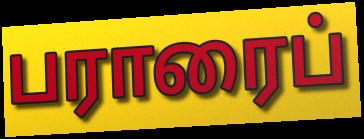
பராரைப்